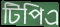
টিপিএ